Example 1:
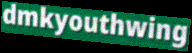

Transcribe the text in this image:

dmkyouthwing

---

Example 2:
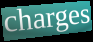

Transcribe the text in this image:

charges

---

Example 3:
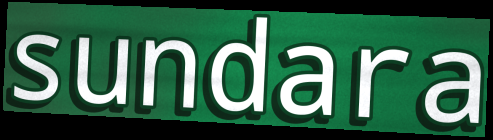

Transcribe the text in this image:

sundara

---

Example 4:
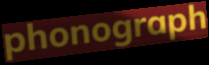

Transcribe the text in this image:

phonograph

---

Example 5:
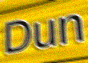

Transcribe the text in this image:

Dun